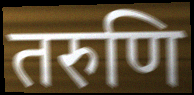
तरुणि